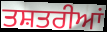
ਤਸ਼ਤਰੀਆਂ